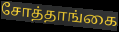
சோத்தாங்கை